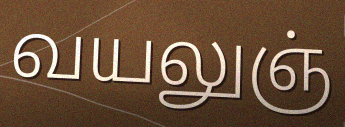
வயலுஞ்